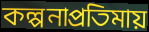
কল্পনাপ্রতিমায়